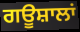
ਗਊਸ਼ਾਲਾਂ